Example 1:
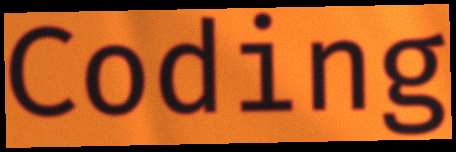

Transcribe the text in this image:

Coding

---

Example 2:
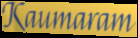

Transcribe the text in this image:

Kaumaram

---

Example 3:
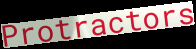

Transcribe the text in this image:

Protractors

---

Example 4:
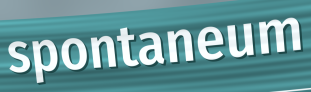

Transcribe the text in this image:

spontaneum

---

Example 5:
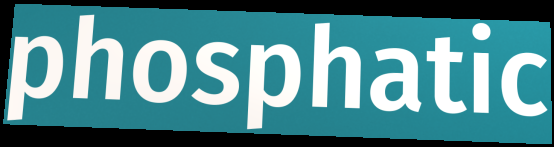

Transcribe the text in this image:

phosphatic